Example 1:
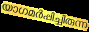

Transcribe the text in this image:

യാഗമർപ്പിച്ചിരുന്ന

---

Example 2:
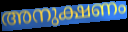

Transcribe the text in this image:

അനുക്ഷണം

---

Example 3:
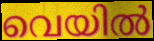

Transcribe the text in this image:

വെയിൽ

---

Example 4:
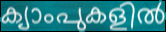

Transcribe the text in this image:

ക്യാംപുകളിൽ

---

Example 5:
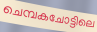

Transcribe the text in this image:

ചെമ്പകചോട്ടിലെ